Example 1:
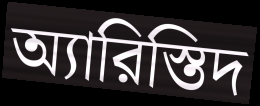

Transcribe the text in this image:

অ্যারিস্তিদ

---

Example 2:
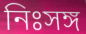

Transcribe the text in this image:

নিঃসঙ্গ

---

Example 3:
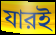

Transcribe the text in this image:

যারই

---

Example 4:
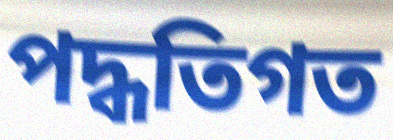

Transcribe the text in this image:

পদ্ধতিগত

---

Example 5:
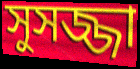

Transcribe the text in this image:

সুসজ্জা